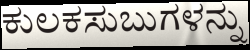
ಕುಲಕಸುಬುಗಳನ್ನು